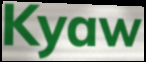
Kyaw